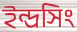
ইন্দ্রসিং